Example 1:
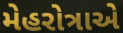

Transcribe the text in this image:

મેહરોત્રાએ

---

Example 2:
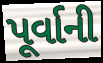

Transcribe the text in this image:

પૂર્વાની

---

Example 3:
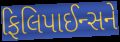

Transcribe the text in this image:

ફિલિપાઈન્સને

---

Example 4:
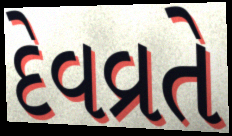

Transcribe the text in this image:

દેવવ્રતે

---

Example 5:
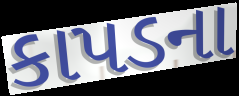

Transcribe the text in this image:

કાપડના